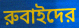
রুবাইদের